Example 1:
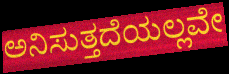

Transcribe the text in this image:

ಅನಿಸುತ್ತದೆಯಲ್ಲವೇ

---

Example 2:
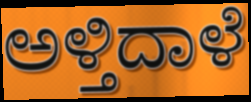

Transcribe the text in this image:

ಅಳ್ತಿದಾಳೆ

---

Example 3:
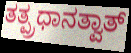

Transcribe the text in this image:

ತತ್ಪ್ರಧಾನತ್ವಾತ್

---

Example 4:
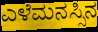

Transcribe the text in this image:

ಎಳೆಮನಸ್ಸಿನ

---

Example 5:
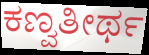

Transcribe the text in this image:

ಕಣ್ವತೀರ್ಥ